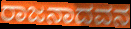
ರಾಜನಾದವನ